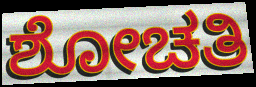
ಶೋಚತಿ